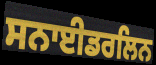
ਸਨਾਈਡਰਲਿਨ